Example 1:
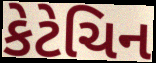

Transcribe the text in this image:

કેટેચિન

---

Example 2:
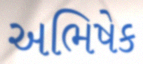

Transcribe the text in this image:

અભિષેક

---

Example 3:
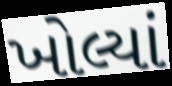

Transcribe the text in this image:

ખોલ્યાં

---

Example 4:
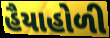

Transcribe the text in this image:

હૈયાહોળી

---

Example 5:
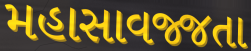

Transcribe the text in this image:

મહાસાવજ્જતા